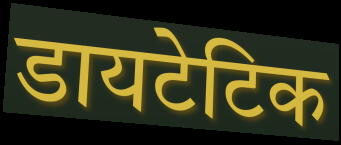
डायटेटिक